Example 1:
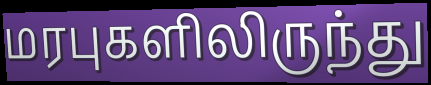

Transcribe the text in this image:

மரபுகளிலிருந்து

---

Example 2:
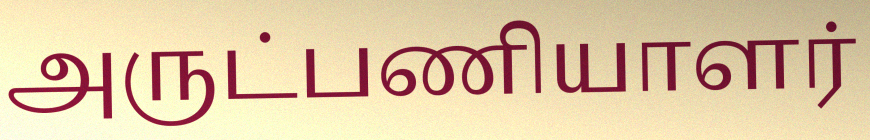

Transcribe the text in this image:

அருட்பணியாளர்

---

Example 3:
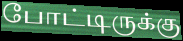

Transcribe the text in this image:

போட்டிருக்கு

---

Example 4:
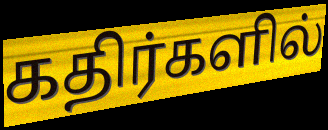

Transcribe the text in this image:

கதிர்களில்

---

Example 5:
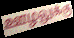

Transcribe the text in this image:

ஊழலுக்கு